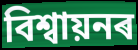
বিশ্ৱায়নৰ